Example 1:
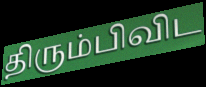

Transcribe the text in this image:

திரும்பிவிட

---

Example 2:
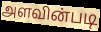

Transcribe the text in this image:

அளவின்படி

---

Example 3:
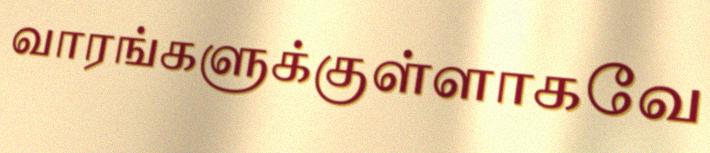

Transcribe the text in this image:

வாரங்களுக்குள்ளாகவே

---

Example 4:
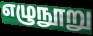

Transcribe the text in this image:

எழுநூறு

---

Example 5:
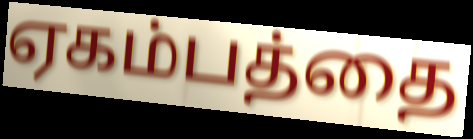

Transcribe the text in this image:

ஏகம்பத்தை